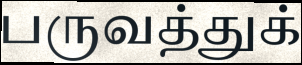
பருவத்துக்